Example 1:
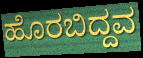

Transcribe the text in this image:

ಹೊರಬಿದ್ದವ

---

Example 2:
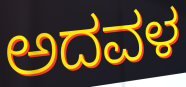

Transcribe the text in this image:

ಅದವಳ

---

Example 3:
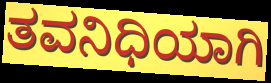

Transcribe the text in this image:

ತವನಿಧಿಯಾಗಿ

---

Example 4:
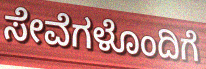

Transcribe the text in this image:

ಸೇವೆಗಳೊಂದಿಗೆ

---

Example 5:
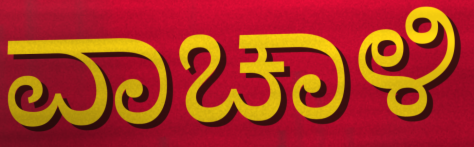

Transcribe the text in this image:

ವಾಚಾಳಿ